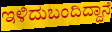
ಇಳಿದುಬಂದಿದ್ದಾನೆ